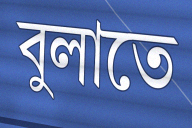
বুলাতে